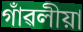
গাঁৱলীয়া